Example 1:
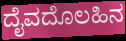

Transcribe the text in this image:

ದೈವದೊಲಹಿನ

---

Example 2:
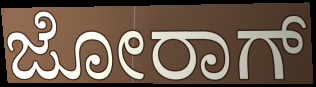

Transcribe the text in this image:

ಜೋರಾಗ್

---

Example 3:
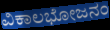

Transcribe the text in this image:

ವಿಕಾಲಭೋಜನಂ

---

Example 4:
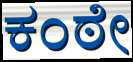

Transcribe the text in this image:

ಕಂಠೇ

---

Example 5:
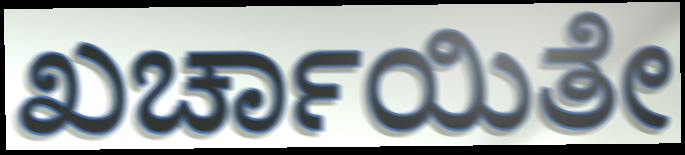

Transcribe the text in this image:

ಖರ್ಚಾಯಿತೇ